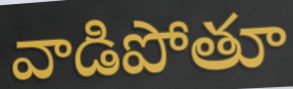
వాడిపోతూ